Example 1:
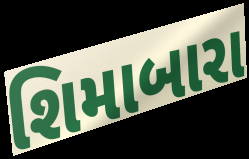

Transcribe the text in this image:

શિમાબારા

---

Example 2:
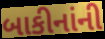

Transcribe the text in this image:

બાકીનાંની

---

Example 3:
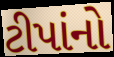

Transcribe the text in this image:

ટીપાંનો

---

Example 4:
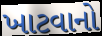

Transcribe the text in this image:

ખાટવાનો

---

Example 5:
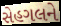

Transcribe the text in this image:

સેહગલને